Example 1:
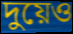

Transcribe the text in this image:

দুয়েও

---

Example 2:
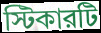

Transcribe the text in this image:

স্টিকারটি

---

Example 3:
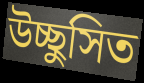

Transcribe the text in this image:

উচ্ছুসিত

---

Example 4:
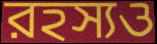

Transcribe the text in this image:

রহস্যও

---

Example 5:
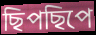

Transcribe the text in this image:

ছিপছিপে